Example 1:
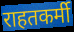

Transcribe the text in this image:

राहतकर्मी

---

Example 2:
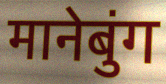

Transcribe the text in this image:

मानेबुंग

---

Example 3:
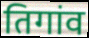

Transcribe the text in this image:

तिगांव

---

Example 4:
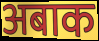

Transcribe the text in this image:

अबाक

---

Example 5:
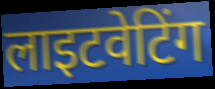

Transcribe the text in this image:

लाइटवेटिंग